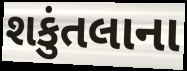
શકુંતલાના